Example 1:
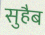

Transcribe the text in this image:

सुहैब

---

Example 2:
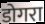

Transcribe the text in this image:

डोगरा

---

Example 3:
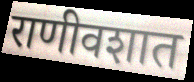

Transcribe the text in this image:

राणीवशात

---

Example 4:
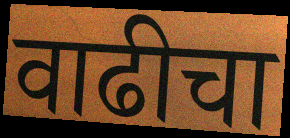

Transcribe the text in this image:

वाढीचा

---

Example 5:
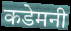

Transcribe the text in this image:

कडेमनी